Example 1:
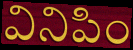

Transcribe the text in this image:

వినిపిం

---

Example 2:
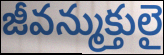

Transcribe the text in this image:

జీవన్ముక్తులై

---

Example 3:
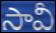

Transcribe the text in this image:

సావీ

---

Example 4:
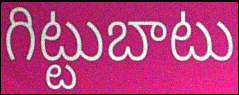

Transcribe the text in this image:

గిట్టుబాటు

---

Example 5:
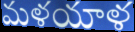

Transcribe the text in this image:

మళయాళ